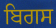
ਬਿਗਸ